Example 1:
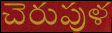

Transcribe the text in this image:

చెరుపుళ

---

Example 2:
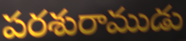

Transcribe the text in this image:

పరశురాముడు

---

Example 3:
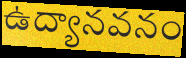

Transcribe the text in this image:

ఉద్యానవనం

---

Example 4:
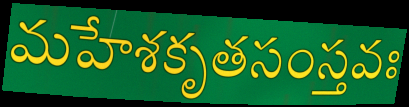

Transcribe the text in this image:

మహేశకృతసంస్తవః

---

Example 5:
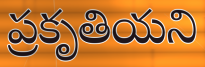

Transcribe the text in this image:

ప్రకృతియని